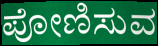
ಪೋಣಿಸುವ